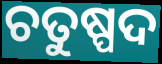
ଚତୁଷ୍ପଦ